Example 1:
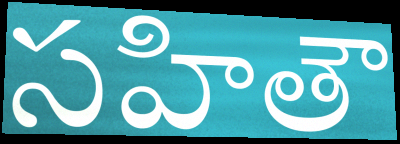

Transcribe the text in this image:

సహితౌ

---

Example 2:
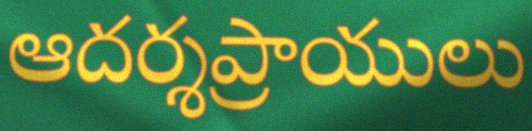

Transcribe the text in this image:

ఆదర్శప్రాయులు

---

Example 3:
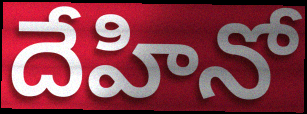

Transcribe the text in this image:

దేహినో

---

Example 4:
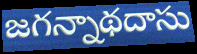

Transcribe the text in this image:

జగన్నాథదాసు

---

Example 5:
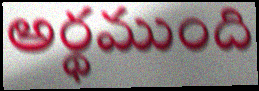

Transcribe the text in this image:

అర్థముంది